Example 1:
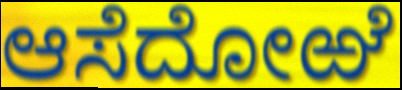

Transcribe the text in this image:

ಆಸೆದೋಱೆ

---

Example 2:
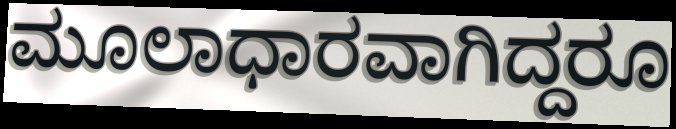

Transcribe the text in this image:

ಮೂಲಾಧಾರವಾಗಿದ್ದರೂ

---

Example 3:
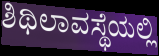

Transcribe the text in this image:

ಶಿಥಿಲಾವಸ್ಥೆಯಲ್ಲಿ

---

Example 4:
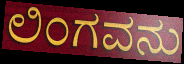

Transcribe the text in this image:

ಲಿಂಗವನು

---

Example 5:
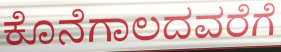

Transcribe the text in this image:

ಕೊನೆಗಾಲದವರೆಗೆ